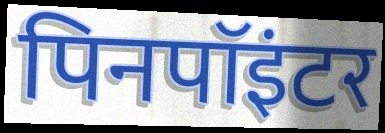
पिनपॉइंटर